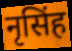
नृसिंह